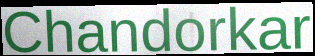
Chandorkar